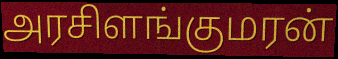
அரசிளங்குமரன்